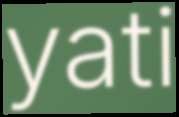
yati